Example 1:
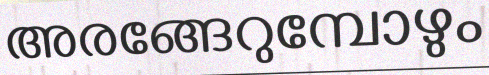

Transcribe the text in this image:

അരങ്ങേറുമ്പോഴും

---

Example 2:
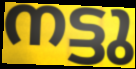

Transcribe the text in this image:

നട്ടു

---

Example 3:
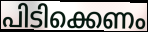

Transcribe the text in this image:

പിടിക്കെണം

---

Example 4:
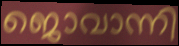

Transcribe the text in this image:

ജൊവാന്നി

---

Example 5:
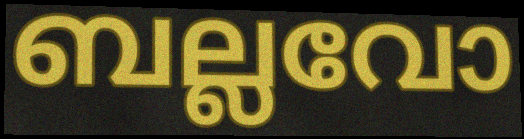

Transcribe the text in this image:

ബല്ലവോ